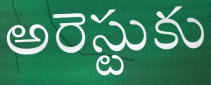
అరెస్టుకు